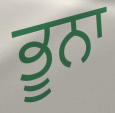
ਭੂਨਾ